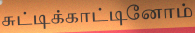
சுட்டிக்காட்டினோம்